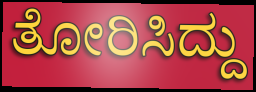
ತೋರಿಸಿದ್ದು